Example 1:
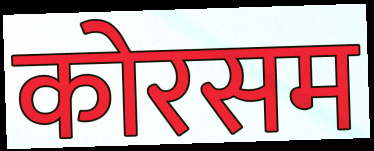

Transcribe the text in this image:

कोरसम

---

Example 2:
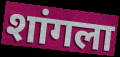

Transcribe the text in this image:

शांगला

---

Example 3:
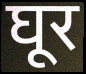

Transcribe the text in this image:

घूर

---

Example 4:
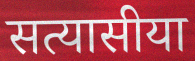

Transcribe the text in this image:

सत्यासीया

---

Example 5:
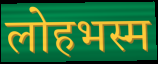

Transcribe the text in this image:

लोहभस्म